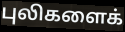
புலிகளைக்